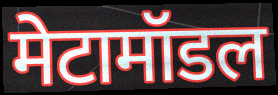
मेटामॉडल